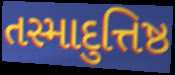
તસ્માદુત્તિષ્ઠ